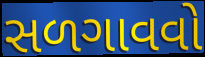
સળગાવવો